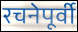
रचनेपूर्वी